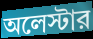
অলেস্টার